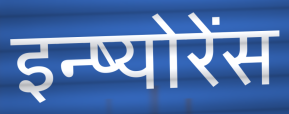
इन्ष्योरेंस